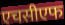
एचसीएफ